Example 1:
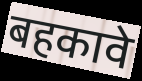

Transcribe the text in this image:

बहकावे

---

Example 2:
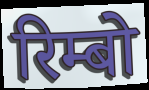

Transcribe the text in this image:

रिम्बो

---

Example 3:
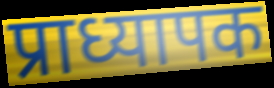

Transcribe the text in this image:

प्राध्यापक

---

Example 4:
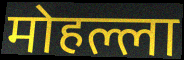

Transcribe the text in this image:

मोहल्‍ला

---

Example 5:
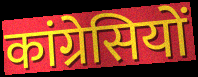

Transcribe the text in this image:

कांग्रेसियों